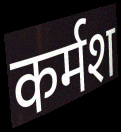
कर्मश